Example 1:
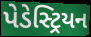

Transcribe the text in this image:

પેડેસ્ટ્રિયન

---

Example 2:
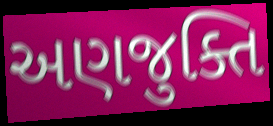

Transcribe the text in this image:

અણજુક્તિ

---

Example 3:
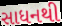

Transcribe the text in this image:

સાધનથી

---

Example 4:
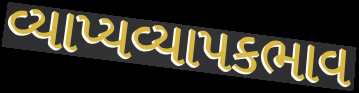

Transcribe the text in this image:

વ્યાપ્યવ્યાપકભાવ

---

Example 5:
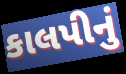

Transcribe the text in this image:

કાલપીનું